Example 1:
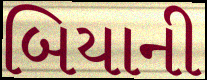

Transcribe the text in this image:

બિયાની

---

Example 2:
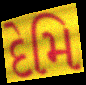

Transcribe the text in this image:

દેમિ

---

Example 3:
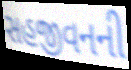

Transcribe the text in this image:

સહજીવનની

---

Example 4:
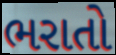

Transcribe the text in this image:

ભરાતો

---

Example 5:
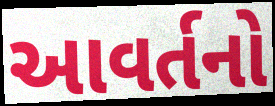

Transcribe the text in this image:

આવર્તનો